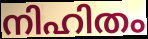
നിഹിതം